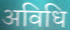
अविधि